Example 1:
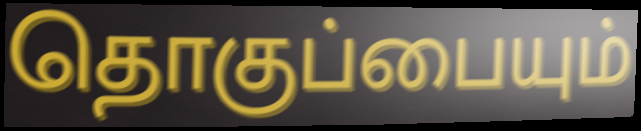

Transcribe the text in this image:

தொகுப்பையும்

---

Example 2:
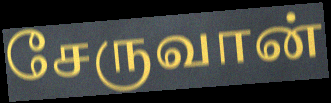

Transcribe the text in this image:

சேருவான்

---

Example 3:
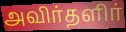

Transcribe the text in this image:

அவிர்தளிர்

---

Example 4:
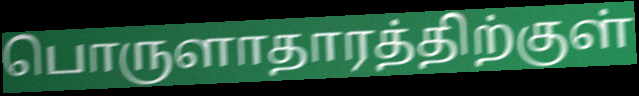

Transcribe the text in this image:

பொருளாதாரத்திற்குள்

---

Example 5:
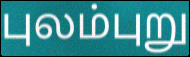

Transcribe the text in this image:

புலம்புறு